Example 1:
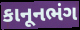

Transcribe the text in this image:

કાનૂનભંગ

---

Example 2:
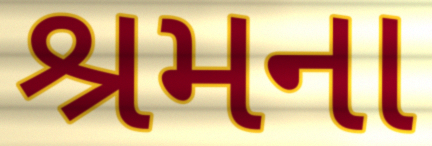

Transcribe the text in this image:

શ્રમના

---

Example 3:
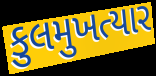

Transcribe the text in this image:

કુલમુખત્યાર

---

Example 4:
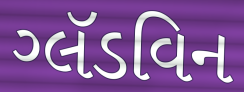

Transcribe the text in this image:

ગ્લૅડવિન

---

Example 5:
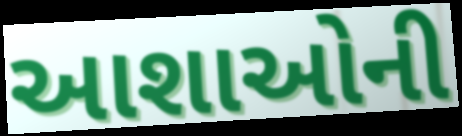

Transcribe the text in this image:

આશાઓની